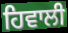
ਹਿਵਾਲੀ